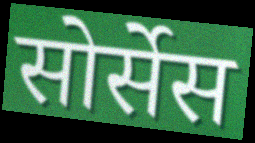
सोर्सेस